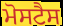
ਮੋਸਟੈਸ